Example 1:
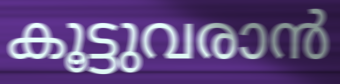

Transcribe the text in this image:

കൂട്ടുവരാൻ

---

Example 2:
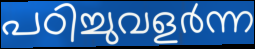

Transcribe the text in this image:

പഠിച്ചുവളർന്ന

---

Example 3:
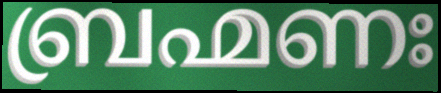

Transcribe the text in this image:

ബ്രഹ്മണഃ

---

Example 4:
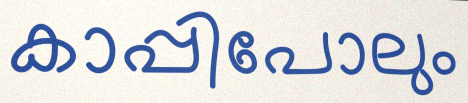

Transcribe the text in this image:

കാപ്പിപോലും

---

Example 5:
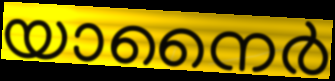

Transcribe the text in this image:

യാനൈർ